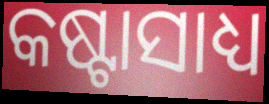
କଷ୍ଟାସାଧ୍ୟ